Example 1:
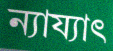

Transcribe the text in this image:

ন্যায্যাৎ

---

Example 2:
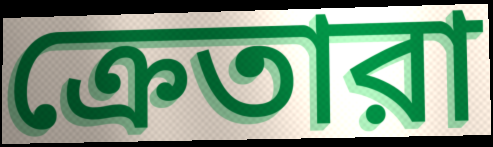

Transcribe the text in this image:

ক্রেতারা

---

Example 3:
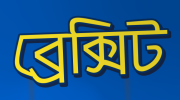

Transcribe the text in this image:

ব্রেক্সিট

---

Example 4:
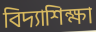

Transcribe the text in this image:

বিদ্যাশিক্ষা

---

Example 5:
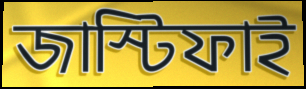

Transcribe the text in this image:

জাস্টিফাই